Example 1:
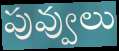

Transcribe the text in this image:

పువ్వులు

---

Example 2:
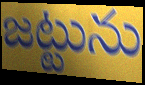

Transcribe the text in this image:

జట్టును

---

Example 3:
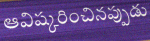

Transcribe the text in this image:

ఆవిష్కరించినప్పుడు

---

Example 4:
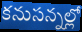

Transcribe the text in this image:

కనుసన్నల్లో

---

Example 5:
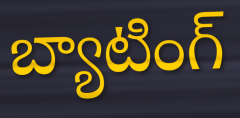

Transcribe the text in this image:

బ్యాటింగ్